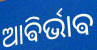
ଆଵିର୍ଭାଵ